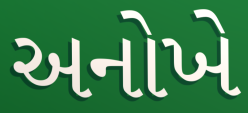
અનોખે